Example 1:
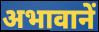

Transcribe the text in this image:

अभावानें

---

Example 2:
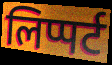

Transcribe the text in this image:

लिप्पर्ट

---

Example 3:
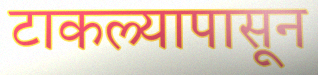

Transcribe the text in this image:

टाकल्यापासून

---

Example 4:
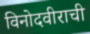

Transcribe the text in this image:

विनोदवीराची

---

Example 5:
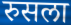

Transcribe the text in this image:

रुसला